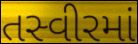
તસ્વીરમાં